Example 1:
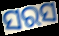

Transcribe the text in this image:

ସରସ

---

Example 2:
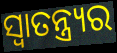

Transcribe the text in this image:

ସ୍ୱାତନ୍ତ୍ର୍ୟର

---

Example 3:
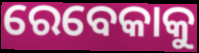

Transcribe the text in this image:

ରେବେକାକୁ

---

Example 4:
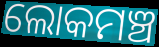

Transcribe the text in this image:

ଲୋକମଞ୍ଚ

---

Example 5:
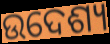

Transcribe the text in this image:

ଉଦେଶ୍ୟ